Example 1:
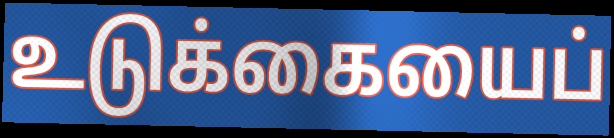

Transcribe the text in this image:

உடுக்கையைப்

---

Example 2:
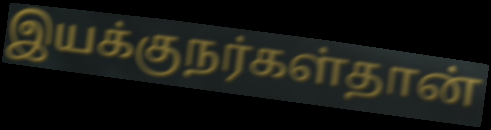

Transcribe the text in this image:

இயக்குநர்கள்தான்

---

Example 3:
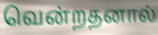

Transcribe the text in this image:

வென்றதனால்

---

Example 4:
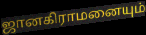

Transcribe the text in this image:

ஜானகிராமனையும்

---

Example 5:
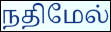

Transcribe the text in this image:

நதிமேல்